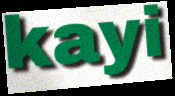
kayi